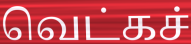
வெட்கச்